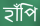
হাঁপি